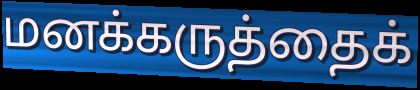
மனக்கருத்தைக்